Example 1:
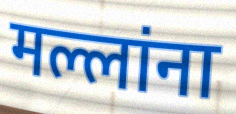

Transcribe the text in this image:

मल्लांना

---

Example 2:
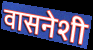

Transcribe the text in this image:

वासनेशी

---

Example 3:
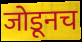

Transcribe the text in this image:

जोडूनच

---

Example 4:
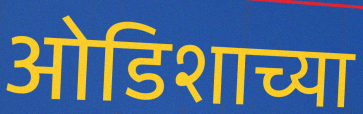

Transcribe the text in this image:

ओडिशाच्या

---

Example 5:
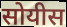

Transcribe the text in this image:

सोयीस